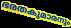
ഭരതകുമാരനും